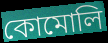
কোমোলি